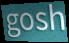
gosh